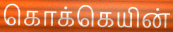
கொக்கெயின்